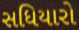
સધિયારો